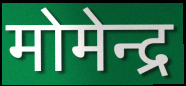
मोमेन्द्र